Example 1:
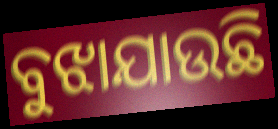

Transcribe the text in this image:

ବୁଝାଯାଉଛି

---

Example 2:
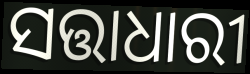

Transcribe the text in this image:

ସତ୍ତାଧାରୀ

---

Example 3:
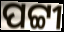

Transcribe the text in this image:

ପଟ୍ଟୀ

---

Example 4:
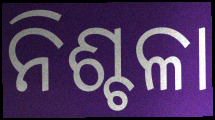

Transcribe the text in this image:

ନିଶ୍ଚଳା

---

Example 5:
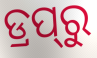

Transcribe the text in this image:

ଡ୍ରପ୍‍ରୁ